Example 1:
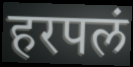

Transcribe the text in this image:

हरपलं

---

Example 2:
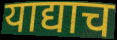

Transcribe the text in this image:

याद्याच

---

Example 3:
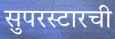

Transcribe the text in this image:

सुपरस्टारची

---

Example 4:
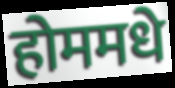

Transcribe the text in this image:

होममधे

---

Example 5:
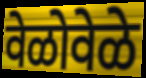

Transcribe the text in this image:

वेळोवेळे